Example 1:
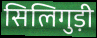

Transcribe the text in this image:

सिलिगुड़ी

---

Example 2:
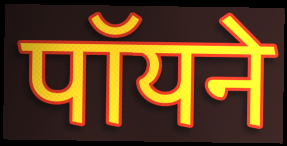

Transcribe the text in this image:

पॉयने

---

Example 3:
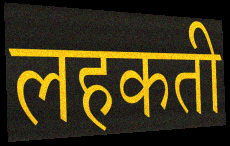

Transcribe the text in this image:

लहकती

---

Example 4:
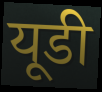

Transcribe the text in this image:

यूडी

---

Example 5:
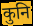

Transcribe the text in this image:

कुनि